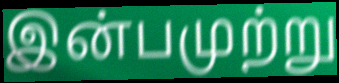
இன்பமுற்று